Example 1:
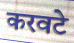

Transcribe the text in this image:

करवटे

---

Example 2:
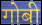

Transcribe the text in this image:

गोबी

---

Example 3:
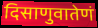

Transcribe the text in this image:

दिसाणुवातेणं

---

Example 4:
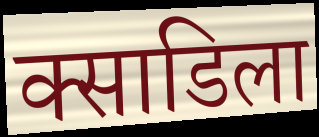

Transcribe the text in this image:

क्साडिला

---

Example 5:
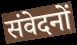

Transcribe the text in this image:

संवेदनों